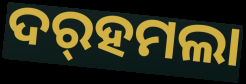
ଦର୍‌ହମଲା